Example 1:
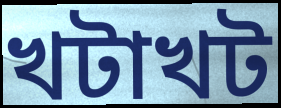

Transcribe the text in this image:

খটাখট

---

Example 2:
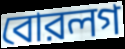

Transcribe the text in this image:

বোরলগ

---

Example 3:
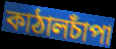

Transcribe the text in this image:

কাঠালচাঁপা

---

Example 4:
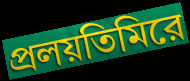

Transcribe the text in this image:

প্রলয়তিমিরে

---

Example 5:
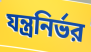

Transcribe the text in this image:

যন্ত্রনির্ভর